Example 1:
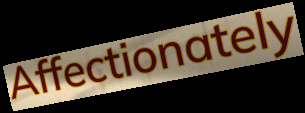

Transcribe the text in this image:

Affectionately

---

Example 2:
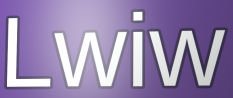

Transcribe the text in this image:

Lwiw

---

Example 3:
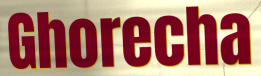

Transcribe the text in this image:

Ghorecha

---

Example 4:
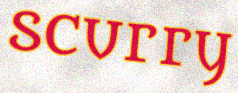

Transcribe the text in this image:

scurry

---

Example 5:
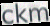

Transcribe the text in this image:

ckm